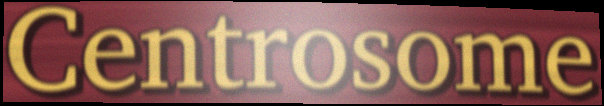
Centrosome